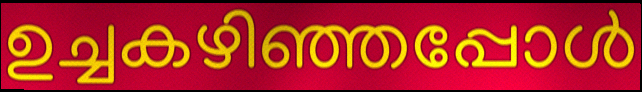
ഉച്ചകഴിഞ്ഞപ്പോൾ